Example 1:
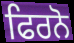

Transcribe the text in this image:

ਫਿਰਨੋ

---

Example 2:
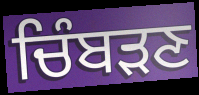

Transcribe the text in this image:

ਚਿੰਬੜਣ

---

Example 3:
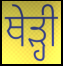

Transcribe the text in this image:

ਥੇੜ੍ਹੀ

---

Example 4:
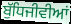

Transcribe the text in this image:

ਬੁੱਧਿਜੀਵੀਆਂ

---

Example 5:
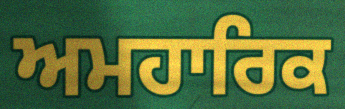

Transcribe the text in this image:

ਅਮਹਾਰਿਕ